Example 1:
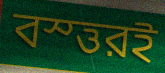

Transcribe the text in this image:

বস্ত্তরই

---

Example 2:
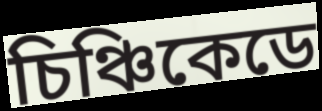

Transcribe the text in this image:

চিঞ্চিকেডে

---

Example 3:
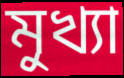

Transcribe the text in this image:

মুখ্যা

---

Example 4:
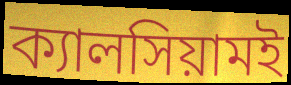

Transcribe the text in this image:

ক্যালসিয়ামই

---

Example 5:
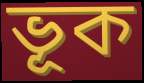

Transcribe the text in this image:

ভূক